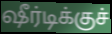
ஷீர்டிக்குச்